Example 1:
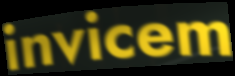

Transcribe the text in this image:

invicem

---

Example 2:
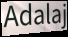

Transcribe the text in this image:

Adalaj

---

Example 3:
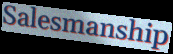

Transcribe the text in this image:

Salesmanship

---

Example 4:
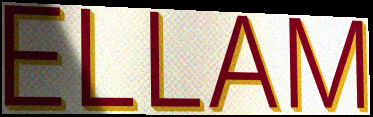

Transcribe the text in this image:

ELLAM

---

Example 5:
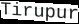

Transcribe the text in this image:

Tirupur